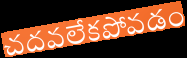
చదవలేకపోవడం